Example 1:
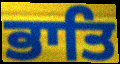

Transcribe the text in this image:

ਭਾਤਿ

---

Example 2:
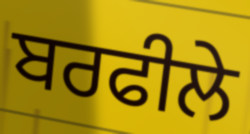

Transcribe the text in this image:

ਬਰਫੀਲੇ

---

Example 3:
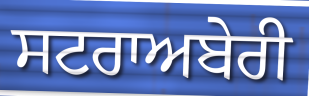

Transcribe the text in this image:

ਸਟਰਾਅਬੇਰੀ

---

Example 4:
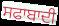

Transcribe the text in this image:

ਸਫਾਬਾਦੀ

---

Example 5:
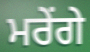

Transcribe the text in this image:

ਮਰੇਂਗੇ